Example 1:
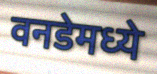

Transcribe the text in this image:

वनडेमध्ये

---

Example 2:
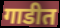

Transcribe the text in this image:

गाडीत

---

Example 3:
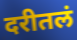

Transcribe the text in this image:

दरीतलं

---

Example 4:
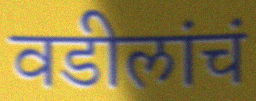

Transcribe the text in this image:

वडीलांचं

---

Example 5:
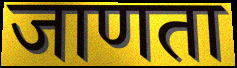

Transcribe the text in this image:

जाणता